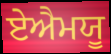
ਏਐਮਯੂ